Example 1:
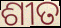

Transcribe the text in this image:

ଶୀତ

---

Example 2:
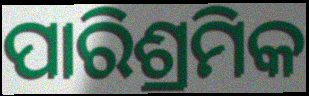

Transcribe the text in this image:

ପାରିଶ୍ରମିକ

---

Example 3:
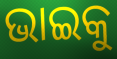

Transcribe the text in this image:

ଭାଇକୁ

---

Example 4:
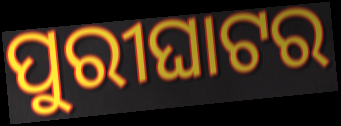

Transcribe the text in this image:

ପୁରୀଘାଟର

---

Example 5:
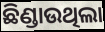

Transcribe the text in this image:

ଛିଣ୍ଡାଉଥିଲା